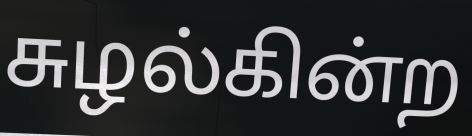
சுழல்கின்ற